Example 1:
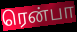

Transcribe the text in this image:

ரென்பா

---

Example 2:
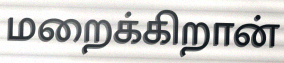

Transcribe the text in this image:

மறைக்கிறான்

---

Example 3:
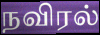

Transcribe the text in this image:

நவிரல்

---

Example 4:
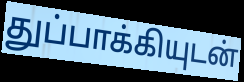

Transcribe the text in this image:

துப்பாக்கியுடன்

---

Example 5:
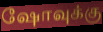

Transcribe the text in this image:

ஷோவுக்கு